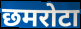
छमरोटा